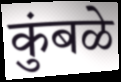
कुंबळे